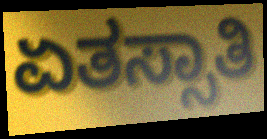
ಏತಸ್ಸಾತಿ